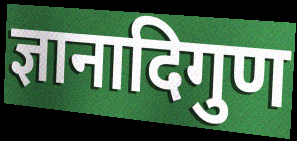
ज्ञानादिगुण